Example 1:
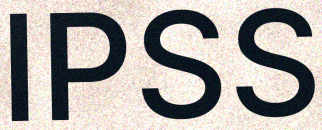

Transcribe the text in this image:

IPSS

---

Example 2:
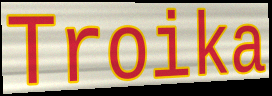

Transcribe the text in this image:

Troika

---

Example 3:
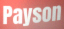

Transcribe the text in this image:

Payson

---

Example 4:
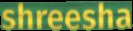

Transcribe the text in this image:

shreesha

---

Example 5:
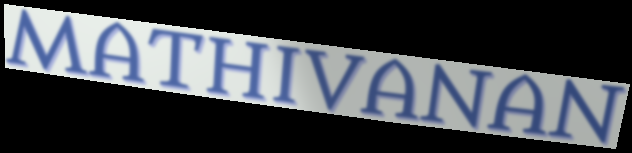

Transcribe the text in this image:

MATHIVANAN